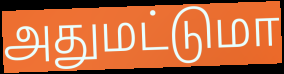
அதுமட்டுமா